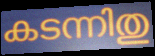
കടന്നിതു